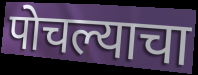
पोचल्याचा